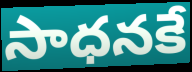
సాధనకే